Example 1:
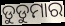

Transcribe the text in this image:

ଡୁଡୁମାର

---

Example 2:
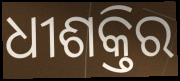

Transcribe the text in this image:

ଧୀଶକ୍ତିର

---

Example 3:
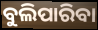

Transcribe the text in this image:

ବୁଲିପାରିବା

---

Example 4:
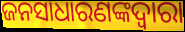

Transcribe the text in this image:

ଜନସାଧାରଣଙ୍କଦ୍ବାରା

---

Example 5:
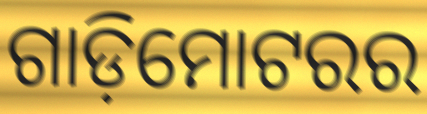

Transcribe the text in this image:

ଗାଡ଼ିମୋଟରର